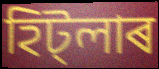
হিট্‌লাৰ